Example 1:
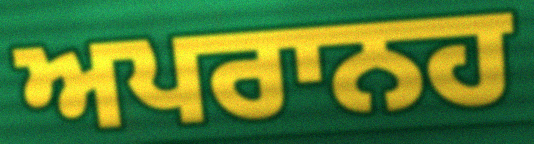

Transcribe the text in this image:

ਅਪਰਾਨਹ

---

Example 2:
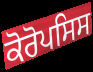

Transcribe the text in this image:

ਕੋਰੋਪਸਿਸ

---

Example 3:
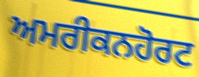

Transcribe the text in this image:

ਅਮਰੀਕਨਹੋਰਟ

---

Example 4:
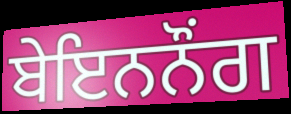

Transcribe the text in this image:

ਬੇਇਨਨੌੰਗ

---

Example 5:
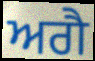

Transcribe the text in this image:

ਅਗੈ